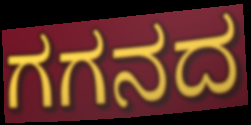
ಗಗನದ